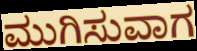
ಮುಗಿಸುವಾಗ